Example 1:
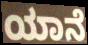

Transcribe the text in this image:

ಯಾನೆ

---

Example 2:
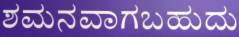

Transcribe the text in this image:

ಶಮನವಾಗಬಹುದು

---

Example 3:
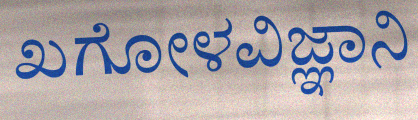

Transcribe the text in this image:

ಖಗೋಳವಿಜ್ಞಾನಿ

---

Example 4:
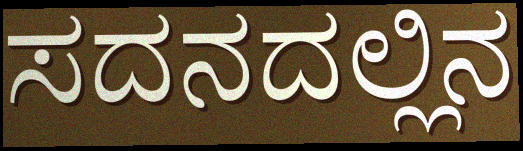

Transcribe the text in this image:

ಸದನದಲ್ಲಿನ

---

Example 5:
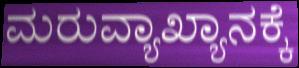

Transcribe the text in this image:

ಮರುವ್ಯಾಖ್ಯಾನಕ್ಕೆ